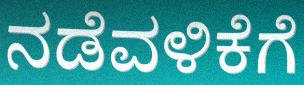
ನಡೆವಳಿಕೆಗೆ